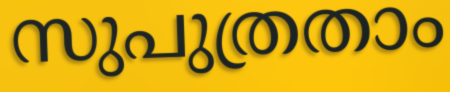
സുപുത്രതാം